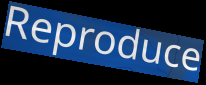
Reproduce